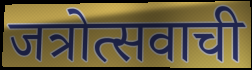
जत्रोत्सवाची